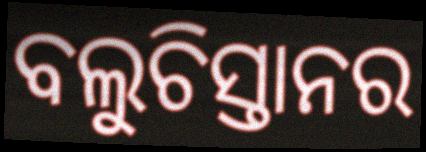
ବଲୁଚିସ୍ତାନର